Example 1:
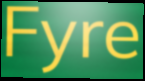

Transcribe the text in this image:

Fyre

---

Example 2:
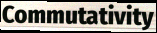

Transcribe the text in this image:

Commutativity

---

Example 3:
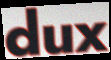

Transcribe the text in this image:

dux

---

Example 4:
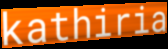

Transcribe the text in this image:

kathiria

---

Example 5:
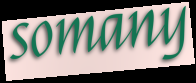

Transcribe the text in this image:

somany